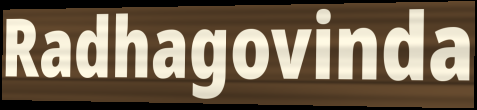
Radhagovinda